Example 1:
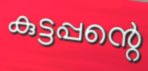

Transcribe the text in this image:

കുട്ടപ്പന്റെ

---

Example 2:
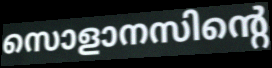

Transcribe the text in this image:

സൊളാനസിന്റെ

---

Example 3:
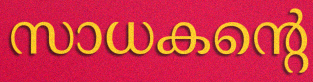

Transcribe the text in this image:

സാധകന്റെ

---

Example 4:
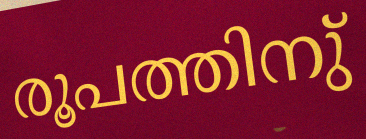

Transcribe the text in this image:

രൂപത്തിനു്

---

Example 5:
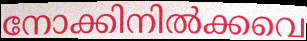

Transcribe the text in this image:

നോക്കിനിൽക്കവെ